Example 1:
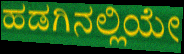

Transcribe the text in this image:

ಹಡಗಿನಲ್ಲಿಯೇ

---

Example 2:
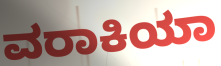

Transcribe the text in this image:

ವರಾಕಿಯಾ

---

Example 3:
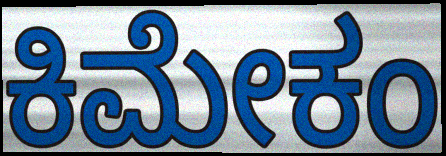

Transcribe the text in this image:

ಕಿಮೇಕಂ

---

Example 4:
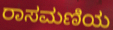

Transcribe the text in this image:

ರಾಸಮಣಿಯ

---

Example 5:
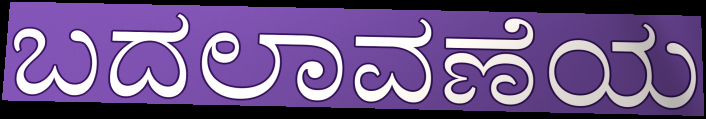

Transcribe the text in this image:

ಬದಲಾವಣೆಯ